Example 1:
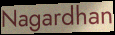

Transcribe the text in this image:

Nagardhan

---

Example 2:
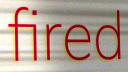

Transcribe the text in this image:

fired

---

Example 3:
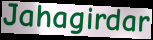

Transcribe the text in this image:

Jahagirdar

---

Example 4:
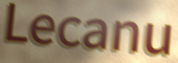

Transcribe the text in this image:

Lecanu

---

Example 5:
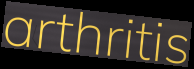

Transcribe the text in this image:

arthritis